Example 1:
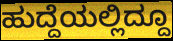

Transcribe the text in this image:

ಹುದ್ದೆಯಲ್ಲಿದ್ದೂ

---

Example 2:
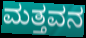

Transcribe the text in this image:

ಮತ್ತವನ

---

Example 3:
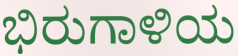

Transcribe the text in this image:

ಭಿರುಗಾಳಿಯ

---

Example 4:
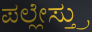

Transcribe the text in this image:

ಪಲ್ಲೇಸ್ತ್ರು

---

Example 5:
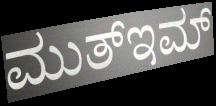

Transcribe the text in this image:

ಮುತ್ಇಮ್